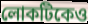
লোকটিকেও